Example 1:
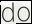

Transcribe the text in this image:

do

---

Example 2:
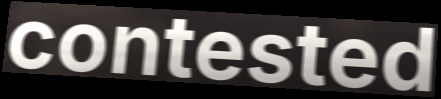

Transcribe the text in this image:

contested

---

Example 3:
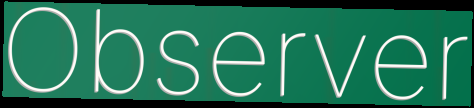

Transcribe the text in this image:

Observer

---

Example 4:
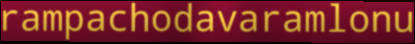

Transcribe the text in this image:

rampachodavaramlonu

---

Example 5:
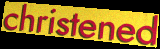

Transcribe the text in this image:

christened